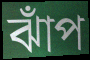
ঝাঁপ